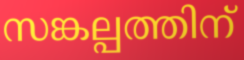
സങ്കല്പത്തിന്